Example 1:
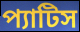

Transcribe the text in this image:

প্যাটিস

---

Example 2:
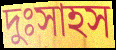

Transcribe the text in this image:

দুঃসাহস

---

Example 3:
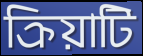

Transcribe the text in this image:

ক্রিয়াটি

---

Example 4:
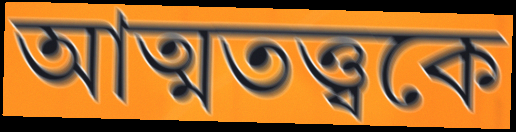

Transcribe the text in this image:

আত্মতত্ত্বকে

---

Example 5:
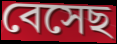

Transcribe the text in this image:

বেসেছ